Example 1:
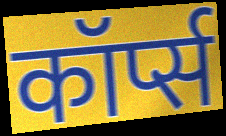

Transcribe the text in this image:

कॉर्प्स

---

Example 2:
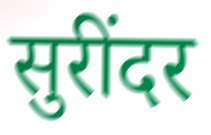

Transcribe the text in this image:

सुरींदर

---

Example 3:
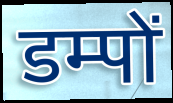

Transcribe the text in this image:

डम्पों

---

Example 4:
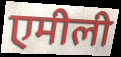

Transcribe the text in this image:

एमीली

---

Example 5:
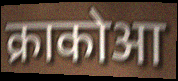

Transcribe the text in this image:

क्राकोआ